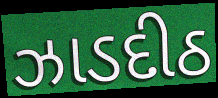
ઝાડદીઠ